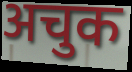
अचुक